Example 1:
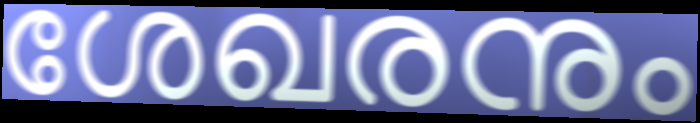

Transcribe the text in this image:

ശേഖരനും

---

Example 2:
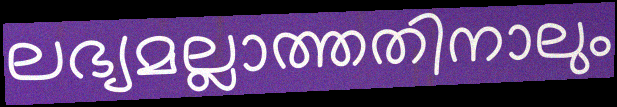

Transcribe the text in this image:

ലഭ്യമല്ലാത്തതിനാലും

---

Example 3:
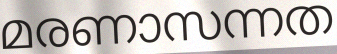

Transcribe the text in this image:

മരണാസന്നത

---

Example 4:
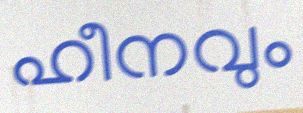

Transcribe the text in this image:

ഹീനവും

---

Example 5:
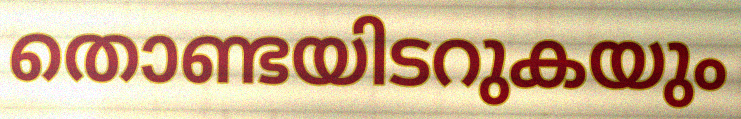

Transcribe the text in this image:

തൊണ്ടയിടറുകയും